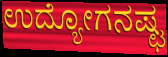
ಉದ್ಯೋಗನಷ್ಟ